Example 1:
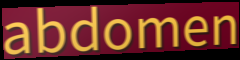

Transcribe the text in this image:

abdomen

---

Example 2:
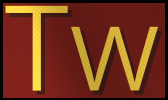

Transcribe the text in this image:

Tw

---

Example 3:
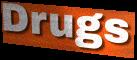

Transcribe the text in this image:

Drugs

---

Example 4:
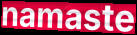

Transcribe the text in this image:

namaste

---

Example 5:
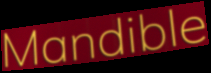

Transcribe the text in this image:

Mandible